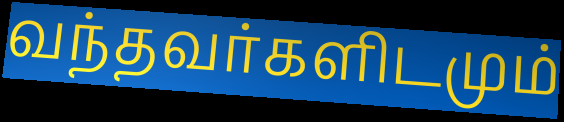
வந்தவர்களிடமும்